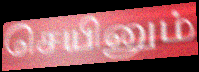
செயினும்